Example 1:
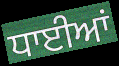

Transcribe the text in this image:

ਧਾਈਆਂ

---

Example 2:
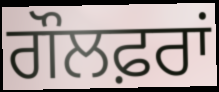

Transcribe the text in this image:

ਗੌਲਫ਼ਰਾਂ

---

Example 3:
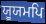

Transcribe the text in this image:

ਯੂਯਮਪਿ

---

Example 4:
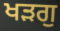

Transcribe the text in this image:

ਖੜਗੁ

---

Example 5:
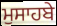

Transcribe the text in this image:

ਮੁਸਾਹਬੇ